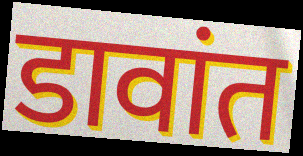
डावांत